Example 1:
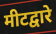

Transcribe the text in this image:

मीटद्वारे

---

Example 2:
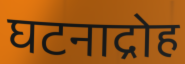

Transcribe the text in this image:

घटनाद्रोह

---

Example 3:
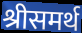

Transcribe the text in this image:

श्रीसमर्थ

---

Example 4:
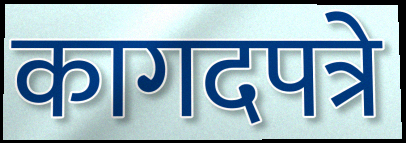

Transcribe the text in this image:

कागदपत्रे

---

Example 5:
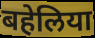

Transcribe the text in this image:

बहेलिया